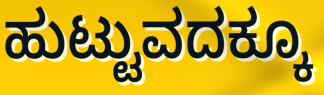
ಹುಟ್ಟುವದಕ್ಕೂ